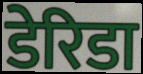
डेरिडा